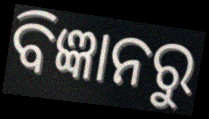
ବିଜ୍ଞାନରୁ